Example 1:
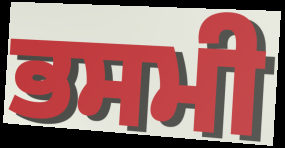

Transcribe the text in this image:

ਭਸਮੀ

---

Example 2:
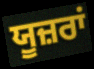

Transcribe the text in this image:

ਯੂਜ਼ਰਾਂ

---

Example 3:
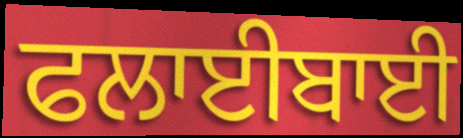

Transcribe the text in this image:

ਫਲਾਈਬਾਈ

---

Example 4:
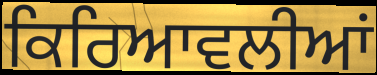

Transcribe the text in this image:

ਕਿਰਿਆਵਲੀਆਂ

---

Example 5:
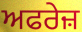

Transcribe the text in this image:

ਅਫਰੇਜ਼